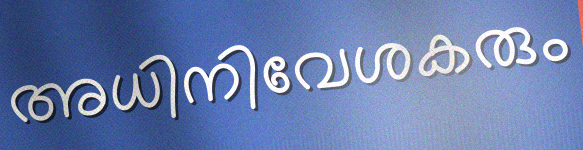
അധിനിവേശകരും